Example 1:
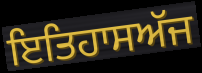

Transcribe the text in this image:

ਇਤਿਹਾਸਅੱਜ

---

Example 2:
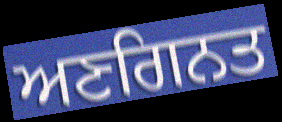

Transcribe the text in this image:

ਅਣਗਿਨਤ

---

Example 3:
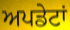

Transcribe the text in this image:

ਅਪਡੇਟਾਂ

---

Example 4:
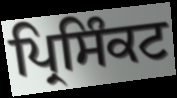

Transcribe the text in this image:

ਪ੍ਰਿਸਿੰਕਟ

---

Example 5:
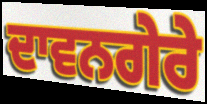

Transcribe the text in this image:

ਦਾਵਨਗੇਰੇ